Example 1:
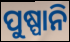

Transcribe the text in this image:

ପୁଷ୍ପାନି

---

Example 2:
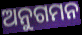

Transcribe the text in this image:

ଅନୁଗମନ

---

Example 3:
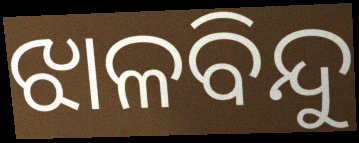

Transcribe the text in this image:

ଝାଳବିନ୍ଦୁ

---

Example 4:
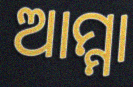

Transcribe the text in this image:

ଆମ୍ମା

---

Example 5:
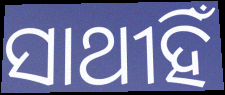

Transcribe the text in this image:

ସାଥୀହିଁ